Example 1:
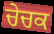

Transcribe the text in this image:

ਚੇਚਕ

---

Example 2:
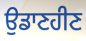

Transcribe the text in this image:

ਉਡਾਣਹੀਣ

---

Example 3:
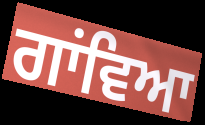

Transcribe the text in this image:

ਗਾਂਵਿਆ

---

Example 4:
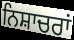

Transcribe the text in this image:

ਨਿਸ਼ਾਚਰਾਂ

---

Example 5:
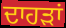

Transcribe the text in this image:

ਦਾਹੜਾਂ